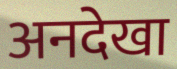
अनदेखा